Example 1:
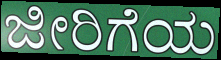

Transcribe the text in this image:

ಜೀರಿಗೆಯ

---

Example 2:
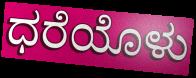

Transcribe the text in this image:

ಧರೆಯೊಳು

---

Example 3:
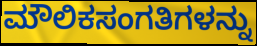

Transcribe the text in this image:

ಮೌಲಿಕಸಂಗತಿಗಳನ್ನು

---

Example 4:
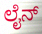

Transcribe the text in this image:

ಲೈನ್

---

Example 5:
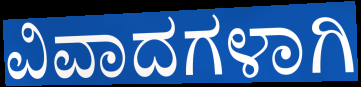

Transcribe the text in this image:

ವಿವಾದಗಳಾಗಿ